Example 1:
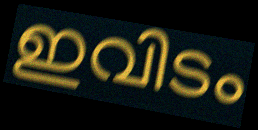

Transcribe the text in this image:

ഇവിടം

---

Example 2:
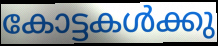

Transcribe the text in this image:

കോട്ടകൾക്കു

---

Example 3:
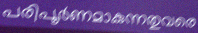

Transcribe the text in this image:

പരിപൂർണമാകുന്നതുവരെ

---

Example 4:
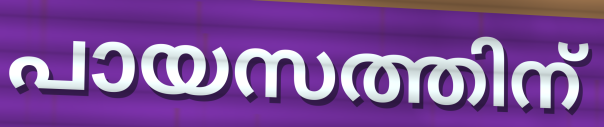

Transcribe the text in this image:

പായസത്തിന്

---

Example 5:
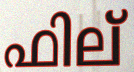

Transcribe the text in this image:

ഫില്